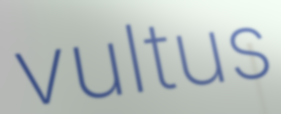
vultus